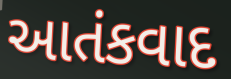
આતંકવાદ